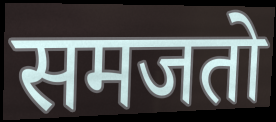
समजतो